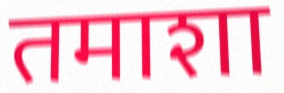
तमाशा